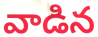
వాడిన